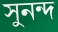
সুনন্দ